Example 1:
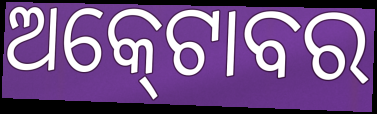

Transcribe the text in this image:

ଅକ୍‍ଟୋବର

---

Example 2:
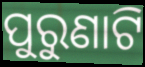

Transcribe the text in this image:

ପୁରୁଣାଟି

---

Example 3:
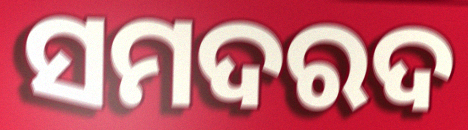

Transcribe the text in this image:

ସମଦରଦ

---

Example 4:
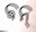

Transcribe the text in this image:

ଵନ୍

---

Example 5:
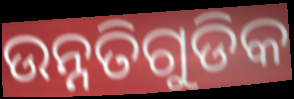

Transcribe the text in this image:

ଉନ୍ନତିଗୁଡିକ